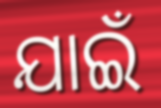
ଯାଇଁ